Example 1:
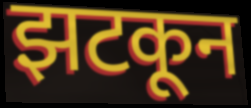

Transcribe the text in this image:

झटकून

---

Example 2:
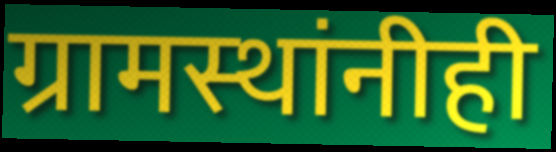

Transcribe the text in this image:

ग्रामस्थांनीही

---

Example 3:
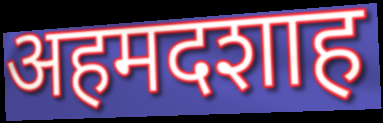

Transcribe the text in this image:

अहमदशाह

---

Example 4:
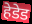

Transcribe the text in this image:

हेडेड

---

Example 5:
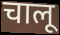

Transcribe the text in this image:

चालू